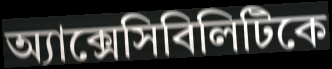
অ্যাক্সেসিবিলিটিকে